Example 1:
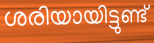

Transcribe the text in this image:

ശരിയായിട്ടുണ്ട്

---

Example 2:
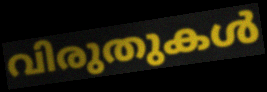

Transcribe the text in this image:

വിരുതുകൾ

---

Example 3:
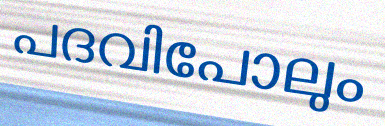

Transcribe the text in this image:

പദവിപോലും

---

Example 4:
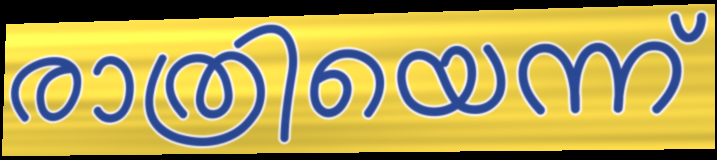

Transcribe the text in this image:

രാത്രിയെന്ന്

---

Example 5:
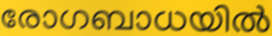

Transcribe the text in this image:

രോഗബാധയിൽ